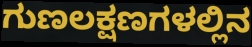
ಗುಣಲಕ್ಷಣಗಳಲ್ಲಿನ